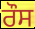
ਰੌਸ